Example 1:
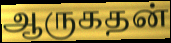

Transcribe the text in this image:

ஆருகதன்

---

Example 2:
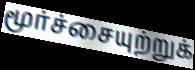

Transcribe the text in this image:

மூர்ச்சையுற்றுக்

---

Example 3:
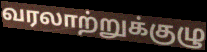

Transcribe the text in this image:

வரலாற்றுக்குழு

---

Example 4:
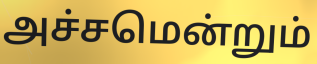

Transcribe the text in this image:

அச்சமென்றும்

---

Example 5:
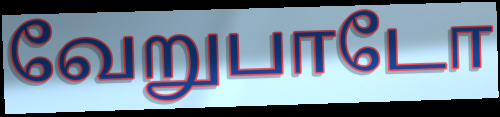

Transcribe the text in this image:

வேறுபாடோ